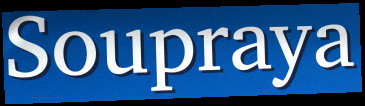
Soupraya